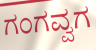
ಗಂಗವ್ವಗ